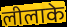
लीलाके